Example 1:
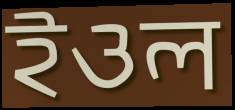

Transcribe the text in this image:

ইওল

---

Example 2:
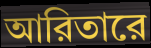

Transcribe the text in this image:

আরিতারে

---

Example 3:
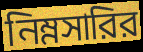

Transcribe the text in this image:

নিম্নসারির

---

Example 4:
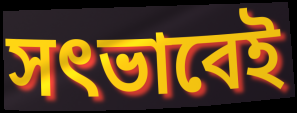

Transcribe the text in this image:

সৎভাবেই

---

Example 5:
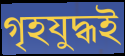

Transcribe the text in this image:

গৃহযুদ্ধই